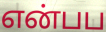
என்பப